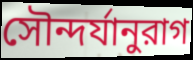
সৌন্দর্যানুরাগ